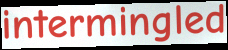
intermingled